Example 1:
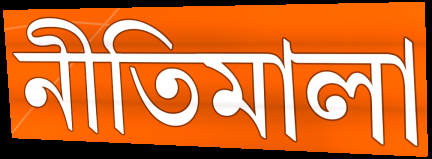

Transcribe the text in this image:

নীতিমালা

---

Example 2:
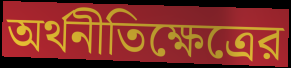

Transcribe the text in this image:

অর্থনীতিক্ষেত্রের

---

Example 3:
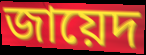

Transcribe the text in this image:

জায়েদ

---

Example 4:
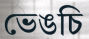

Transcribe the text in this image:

ভেঙচি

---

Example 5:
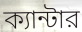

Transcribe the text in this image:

ক্যান্টার